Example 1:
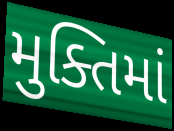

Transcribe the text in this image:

મુક્તિમાં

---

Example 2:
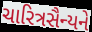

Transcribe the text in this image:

ચારિત્રસૈન્યને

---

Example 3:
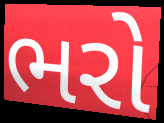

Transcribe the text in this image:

ભરો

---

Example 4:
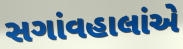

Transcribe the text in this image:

સગાંવહાલાંએ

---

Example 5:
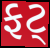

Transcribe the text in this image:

ફટ્